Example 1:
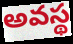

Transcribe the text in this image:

అవస్థ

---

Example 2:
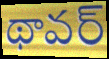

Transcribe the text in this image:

థావర్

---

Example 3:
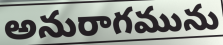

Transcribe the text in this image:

అనురాగమును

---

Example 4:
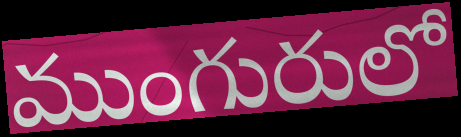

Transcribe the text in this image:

ముంగురులో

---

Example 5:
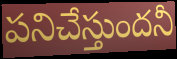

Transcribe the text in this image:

పనిచేస్తుందనీ